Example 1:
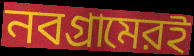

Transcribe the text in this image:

নবগ্রামেরই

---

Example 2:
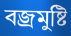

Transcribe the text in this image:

বজ্রমুষ্টি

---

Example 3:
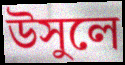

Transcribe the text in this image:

উসুলে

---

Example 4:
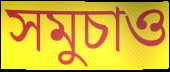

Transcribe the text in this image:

সমুচাও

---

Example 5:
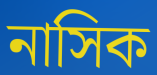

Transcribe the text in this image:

নাসিক